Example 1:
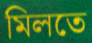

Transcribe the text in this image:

মিলতে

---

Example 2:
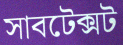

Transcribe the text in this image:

সাবটেক্সট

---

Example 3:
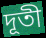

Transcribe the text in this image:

দূতী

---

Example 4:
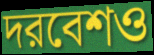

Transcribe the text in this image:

দরবেশও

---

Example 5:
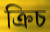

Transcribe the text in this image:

ক্রিচ